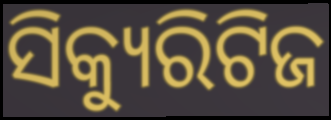
ସିକ୍ୟୁରିଟିଜ